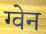
ग्वेन